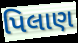
પિલાણ